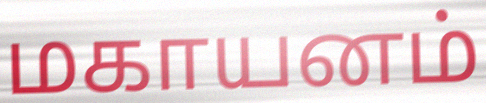
மகாயனம்